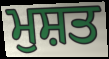
ਮੁਸ਼ਤ